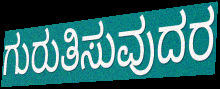
ಗುರುತಿಸುವುದರ